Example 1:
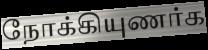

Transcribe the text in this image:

நோக்கியுணர்க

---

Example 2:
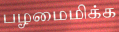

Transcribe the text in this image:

பழமைமிக்க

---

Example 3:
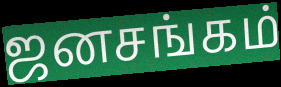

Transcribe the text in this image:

ஜனசங்கம்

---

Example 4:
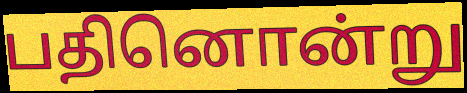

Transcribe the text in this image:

பதினொன்று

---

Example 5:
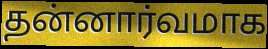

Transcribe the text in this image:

தன்னார்வமாக